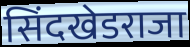
सिंदखेडराजा